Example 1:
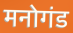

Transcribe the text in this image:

मनोगंड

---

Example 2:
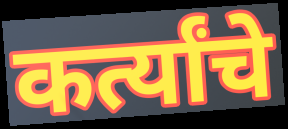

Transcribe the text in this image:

कर्त्यांचे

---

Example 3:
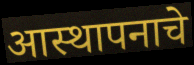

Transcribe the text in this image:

आस्थापनाचे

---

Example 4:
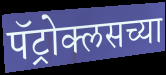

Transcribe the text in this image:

पॅट्रोक्लसच्या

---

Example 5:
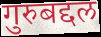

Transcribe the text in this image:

गुरुबद्दल